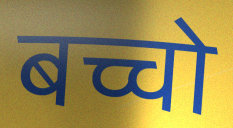
बच्चो